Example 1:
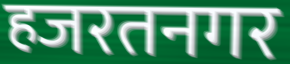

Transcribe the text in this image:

हजरतनगर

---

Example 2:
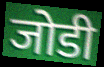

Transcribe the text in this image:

जोडी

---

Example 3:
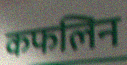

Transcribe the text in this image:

कफलिन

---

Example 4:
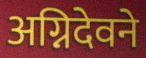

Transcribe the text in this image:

अग्निदेवने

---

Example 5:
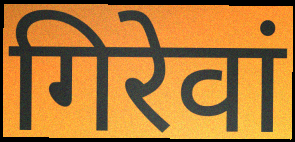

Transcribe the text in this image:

गिरेवां